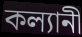
কল্যানী